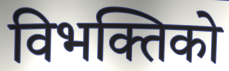
विभक्तिको